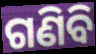
ଗଣିବି